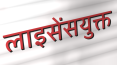
लाइसेंसयुक्त